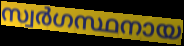
സ്വർഗസ്ഥനായ